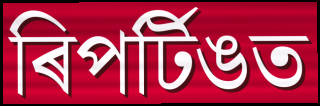
ৰিপৰ্টিঙত